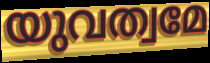
യുവത്വമേ